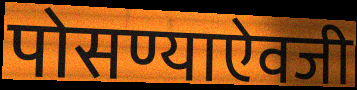
पोसण्याऐवजी